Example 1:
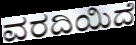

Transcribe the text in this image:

ವರದಿಯಿದೆ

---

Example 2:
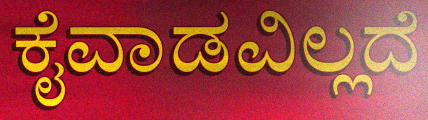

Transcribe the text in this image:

ಕೈವಾಡವಿಲ್ಲದೆ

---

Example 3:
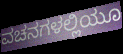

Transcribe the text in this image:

ವಚನಗಳಲ್ಲಿಯೂ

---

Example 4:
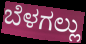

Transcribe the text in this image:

ಬೆಳಗಲ್ಲು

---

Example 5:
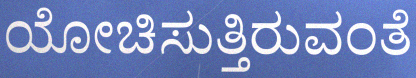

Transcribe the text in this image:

ಯೋಚಿಸುತ್ತಿರುವಂತೆ